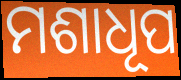
ମଶାଧୂପ